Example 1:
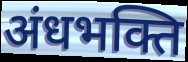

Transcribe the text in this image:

अंधभक्ति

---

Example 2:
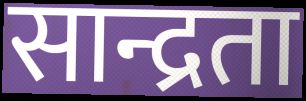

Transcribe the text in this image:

सान्द्रता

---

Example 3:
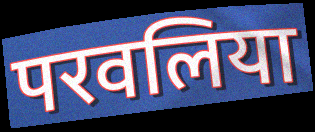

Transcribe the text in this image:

परवलिया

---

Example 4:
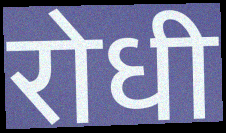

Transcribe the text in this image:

रोधी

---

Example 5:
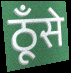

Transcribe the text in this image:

ठूँसे